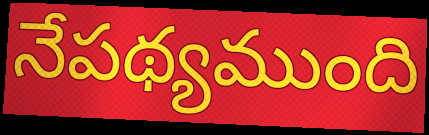
నేపథ్యముంది